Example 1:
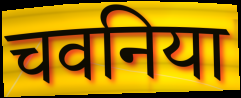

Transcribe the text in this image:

चवनिया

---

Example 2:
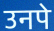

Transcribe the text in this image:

उनपे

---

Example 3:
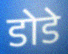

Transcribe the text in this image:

डोडे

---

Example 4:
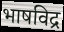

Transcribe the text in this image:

भाषविद्र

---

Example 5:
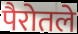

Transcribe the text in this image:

पैरोतले